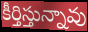
కీర్తిస్తున్నావు